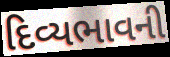
દિવ્યભાવની